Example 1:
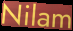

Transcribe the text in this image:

Nilam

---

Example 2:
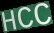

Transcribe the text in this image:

HCC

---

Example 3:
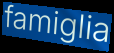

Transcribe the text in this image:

famiglia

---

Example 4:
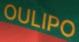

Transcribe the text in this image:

OULIPO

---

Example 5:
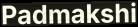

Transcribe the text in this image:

Padmakshi